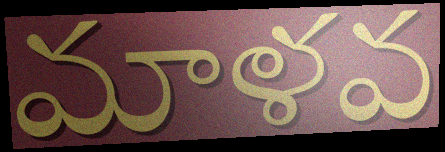
మాళవ